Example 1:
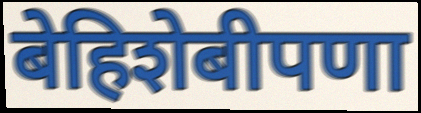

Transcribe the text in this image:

बेहिशेबीपणा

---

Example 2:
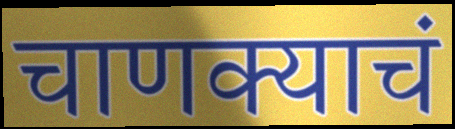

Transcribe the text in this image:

चाणक्याचं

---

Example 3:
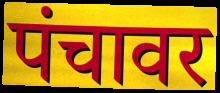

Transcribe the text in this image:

पंचावर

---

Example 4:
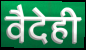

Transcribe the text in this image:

वैदेही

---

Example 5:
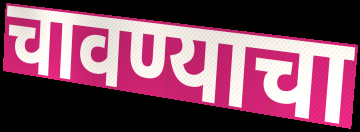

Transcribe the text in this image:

चावण्याचा